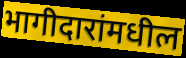
भागीदारांमधील